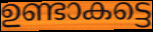
ഉണ്ടാകട്ടെ